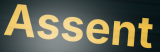
Assent